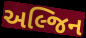
અલ્જિન